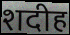
शदीह